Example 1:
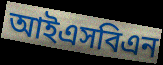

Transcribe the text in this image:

আইএসবিএন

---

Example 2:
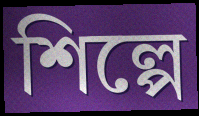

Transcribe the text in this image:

শিল্পে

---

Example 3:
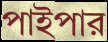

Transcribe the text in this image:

পাইপার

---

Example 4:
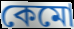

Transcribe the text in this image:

কেমো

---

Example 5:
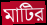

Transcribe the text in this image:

মাটির